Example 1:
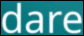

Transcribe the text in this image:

dare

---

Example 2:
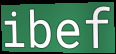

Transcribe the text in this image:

ibef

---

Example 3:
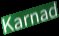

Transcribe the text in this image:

Karnad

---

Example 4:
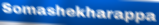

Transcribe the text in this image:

Somashekharappa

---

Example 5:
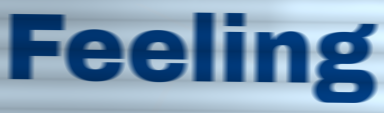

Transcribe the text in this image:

Feeling